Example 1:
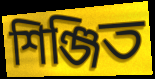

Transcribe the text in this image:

শিঞ্জিত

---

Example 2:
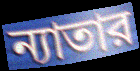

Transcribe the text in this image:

ন্যাতার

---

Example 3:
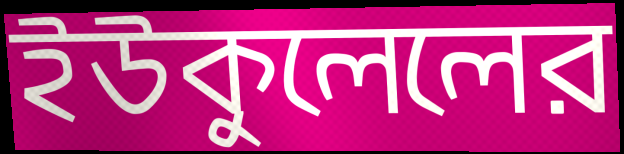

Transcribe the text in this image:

ইউকুলেলের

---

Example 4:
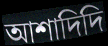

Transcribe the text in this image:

আশাদিদি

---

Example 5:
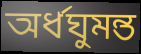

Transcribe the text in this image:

অর্ধঘুমন্ত